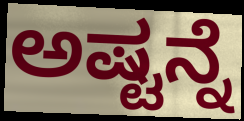
ಅಷ್ಟನ್ನೆ